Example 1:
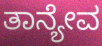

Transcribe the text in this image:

ತಾನ್ಯೇವ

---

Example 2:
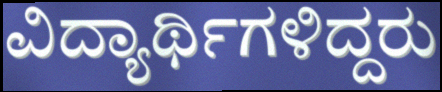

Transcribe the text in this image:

ವಿದ್ಯಾರ್ಥಿಗಳಿದ್ದರು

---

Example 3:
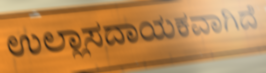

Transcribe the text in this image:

ಉಲ್ಲಾಸದಾಯಕವಾಗಿದೆ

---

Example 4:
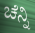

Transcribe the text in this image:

ಚೆನ್ನಿ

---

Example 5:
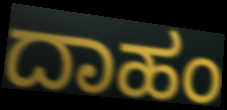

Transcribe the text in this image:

ದಾಹಂ